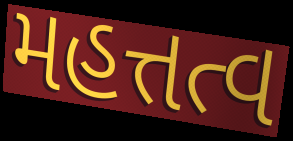
મહત્તત્વ